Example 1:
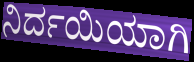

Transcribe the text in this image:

ನಿರ್ದಯಿಯಾಗಿ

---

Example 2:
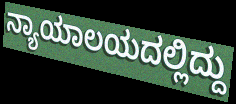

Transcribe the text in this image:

ನ್ಯಾಯಾಲಯದಲ್ಲಿದ್ದು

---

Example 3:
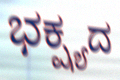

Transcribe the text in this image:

ಭಕ್ಷ್ಯದ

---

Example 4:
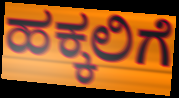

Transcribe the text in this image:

ಹಕ್ಕಲಿಗೆ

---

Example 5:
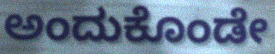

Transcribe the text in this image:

ಅಂದುಕೊಂಡೇ